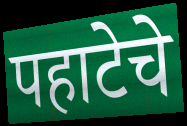
पहाटेचे